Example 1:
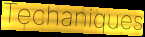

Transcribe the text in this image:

Techaniques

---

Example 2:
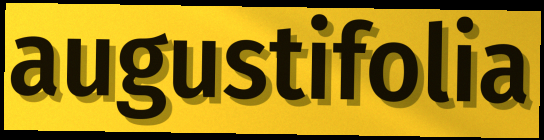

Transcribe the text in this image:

augustifolia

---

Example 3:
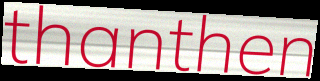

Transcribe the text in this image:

thanthen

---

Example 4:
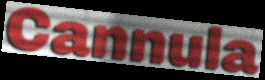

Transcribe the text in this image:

Cannula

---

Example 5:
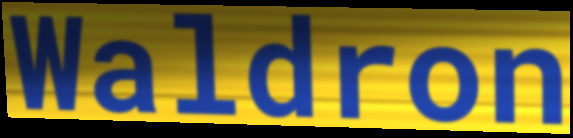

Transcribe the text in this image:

Waldron